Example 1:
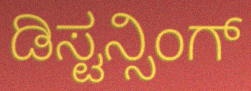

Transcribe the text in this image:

ಡಿಸ್ಟನ್ಸಿಂಗ್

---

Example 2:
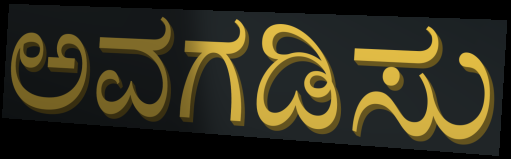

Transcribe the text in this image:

ಅವಗಡಿಸು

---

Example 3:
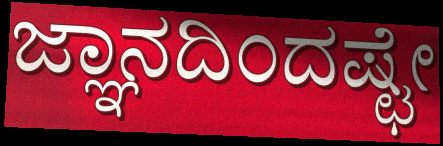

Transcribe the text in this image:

ಜ್ಞಾನದಿಂದಷ್ಟೇ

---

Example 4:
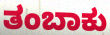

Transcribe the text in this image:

ತಂಬಾಕು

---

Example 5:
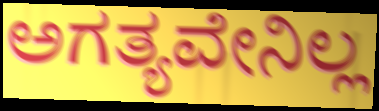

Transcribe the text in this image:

ಅಗತ್ಯವೇನಿಲ್ಲ